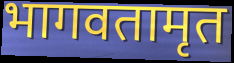
भागवतामृत